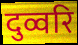
दुव्वरि